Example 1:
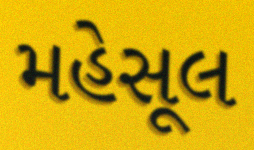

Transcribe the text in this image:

મહેસૂલ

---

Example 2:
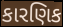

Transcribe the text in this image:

કારણિક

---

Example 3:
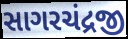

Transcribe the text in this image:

સાગરચંદ્રજી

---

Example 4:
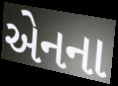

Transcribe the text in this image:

એનના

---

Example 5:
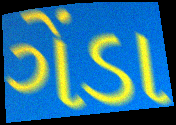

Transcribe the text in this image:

ગેંડા